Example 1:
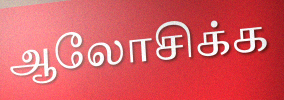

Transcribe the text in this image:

ஆலோசிக்க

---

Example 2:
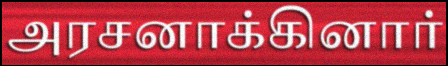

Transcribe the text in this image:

அரசனாக்கினார்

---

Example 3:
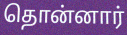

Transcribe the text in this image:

தொன்னார்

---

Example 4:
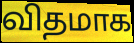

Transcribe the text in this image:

விதமாக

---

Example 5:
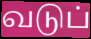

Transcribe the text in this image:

வடுப்